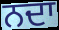
ਨਦਾ